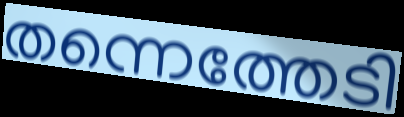
തന്നെത്തേടി